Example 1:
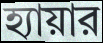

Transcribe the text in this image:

হ্যায়ার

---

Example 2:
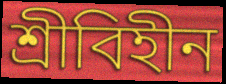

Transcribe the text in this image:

শ্রীবিহীন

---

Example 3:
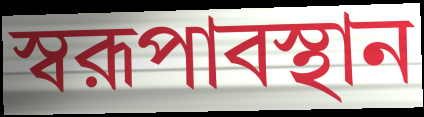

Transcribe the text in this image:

স্বরূপাবস্থান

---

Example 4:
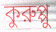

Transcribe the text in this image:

কুরুপ্পু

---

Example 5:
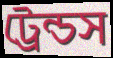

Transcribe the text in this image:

ট্রেন্ডস